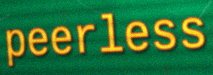
peerless